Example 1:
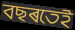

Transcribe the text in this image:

বছৰতেই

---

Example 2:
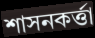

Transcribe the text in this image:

শাসনকৰ্ত্তা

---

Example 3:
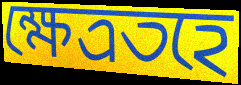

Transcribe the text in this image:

ক্ষেত্ৰতহে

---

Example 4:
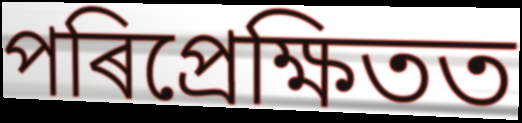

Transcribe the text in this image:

পৰিপ্ৰেক্ষিতত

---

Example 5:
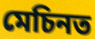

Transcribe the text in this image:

মেচিনত